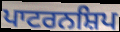
ਪਾਟਰਨਸ਼ਿਪ